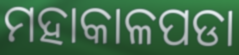
ମହାକାଳପଡା